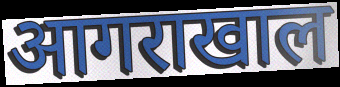
आगराखाल